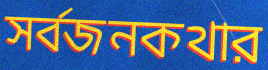
সর্বজনকথার